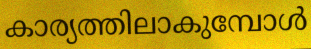
കാര്യത്തിലാകുമ്പോൾ